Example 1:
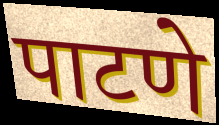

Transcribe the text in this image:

पाटणे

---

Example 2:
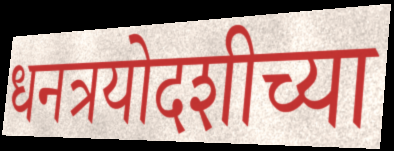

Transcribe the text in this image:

धनत्रयोदशीच्या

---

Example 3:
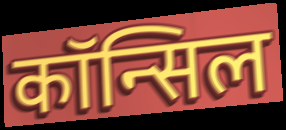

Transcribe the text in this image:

कॉन्सिल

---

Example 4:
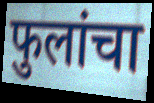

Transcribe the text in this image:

फुलांचा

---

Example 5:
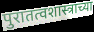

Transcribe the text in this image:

पुरातत्वशास्त्राच्या